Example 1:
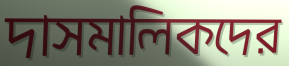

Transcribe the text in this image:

দাসমালিকদের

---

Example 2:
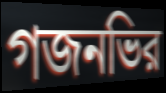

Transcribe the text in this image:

গজনভির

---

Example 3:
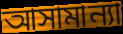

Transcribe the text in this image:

আসামান্যা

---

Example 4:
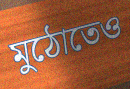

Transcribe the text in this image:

মুঠোতেও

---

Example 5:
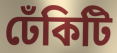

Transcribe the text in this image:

ঢেঁকিটি